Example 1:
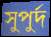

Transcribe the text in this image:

সুপুর্দ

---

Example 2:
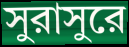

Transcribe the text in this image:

সুরাসুরে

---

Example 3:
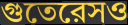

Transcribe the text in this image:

গুতেরেসও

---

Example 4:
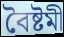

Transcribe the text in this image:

বৈষ্টমী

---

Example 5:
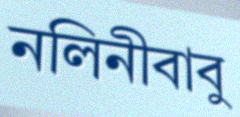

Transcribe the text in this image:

নলিনীবাবু